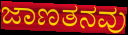
ಜಾಣತನವು